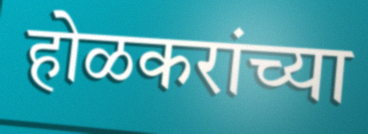
होळकरांच्या